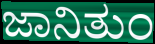
ಜಾನಿತುಂ